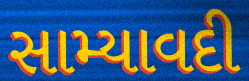
સામ્યાવદી